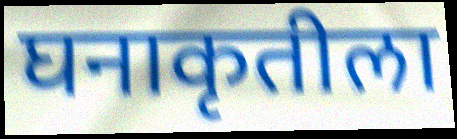
घनाकृतीला